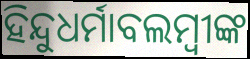
ହିନ୍ଦୁଧର୍ମାବଲମ୍ବୀଙ୍କ